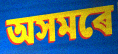
অসমৰে